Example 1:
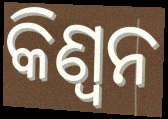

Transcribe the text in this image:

କିଣ୍ୱନ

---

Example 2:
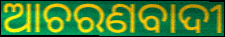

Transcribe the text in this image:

ଆଚରଣବାଦୀ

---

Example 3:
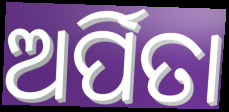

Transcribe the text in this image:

ଅର୍ପିତା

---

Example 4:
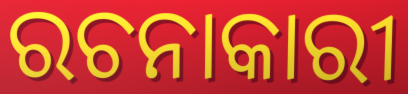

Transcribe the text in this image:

ରଚନାକାରୀ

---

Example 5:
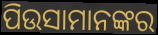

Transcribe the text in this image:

ପିଉସାମାନଙ୍କର